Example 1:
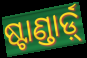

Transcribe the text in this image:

ଷ୍ଟାଣ୍ଡାର୍ଡ଼୍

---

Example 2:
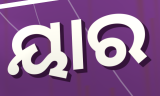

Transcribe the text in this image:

ୟାର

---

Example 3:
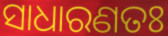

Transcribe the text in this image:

ସାଧାରଣତଃ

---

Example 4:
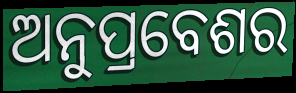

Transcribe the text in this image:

ଅନୁପ୍ରବେଶର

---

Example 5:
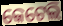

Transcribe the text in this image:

କେଟେଲି